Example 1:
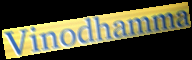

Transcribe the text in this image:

Vinodhamma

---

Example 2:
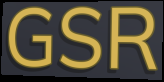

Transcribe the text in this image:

GSR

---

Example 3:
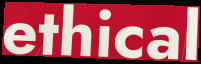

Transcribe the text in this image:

ethical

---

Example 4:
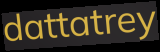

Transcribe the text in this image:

dattatrey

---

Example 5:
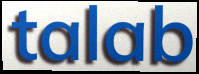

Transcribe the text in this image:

talab